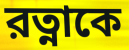
রত্নাকে